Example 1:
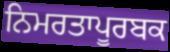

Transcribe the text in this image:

ਨਿਮਰਤਾਪੂਰਬਕ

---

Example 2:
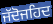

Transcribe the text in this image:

ਜੱਦੋਜਹਿਦ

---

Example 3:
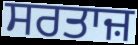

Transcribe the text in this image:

ਸਰਤਾਜ਼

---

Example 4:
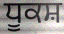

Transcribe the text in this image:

ਧੂਕਸ਼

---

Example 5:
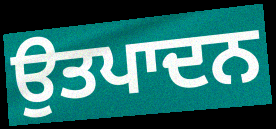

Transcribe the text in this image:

ਉਤਪਾਦਨ